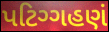
પટિગ્ગહણં